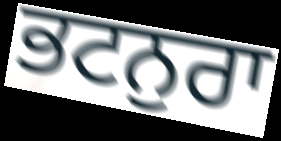
ਭਟਨੁਰਾ